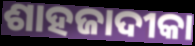
ଶାହଜାଦୀକା